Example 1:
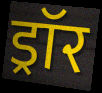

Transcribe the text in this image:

ड्रॉर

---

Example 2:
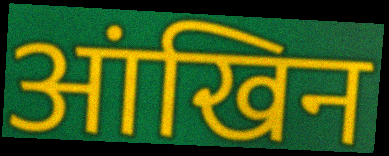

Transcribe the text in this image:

आंखिन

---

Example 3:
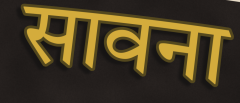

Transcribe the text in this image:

सावना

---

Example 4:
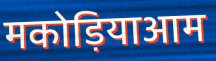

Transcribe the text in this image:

मकोड़ियाआम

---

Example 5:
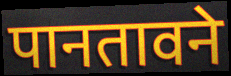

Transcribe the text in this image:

पानतावने